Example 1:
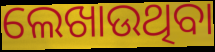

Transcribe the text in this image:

ଲେଖାଉଥିବା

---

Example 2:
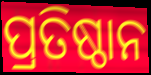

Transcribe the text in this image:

ପ୍ରତିଷ୍ଠାନ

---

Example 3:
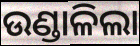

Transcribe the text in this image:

ଉଣ୍ଡାଳିଲା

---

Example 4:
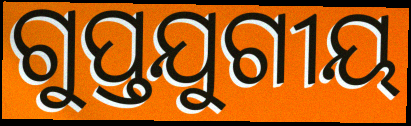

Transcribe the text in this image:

ଗୁପ୍ତଯୁଗୀୟ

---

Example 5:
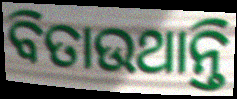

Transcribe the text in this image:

ବିତାଉଥାନ୍ତି